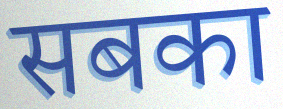
सबका